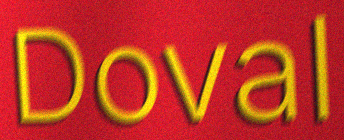
Doval